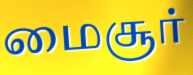
மைசூர்